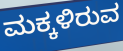
ಮಕ್ಕಳಿರುವ